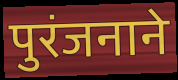
पुरंजनाने